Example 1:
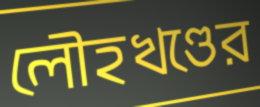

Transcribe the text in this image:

লৌহখণ্ডের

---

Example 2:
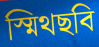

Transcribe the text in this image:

স্মিথছবি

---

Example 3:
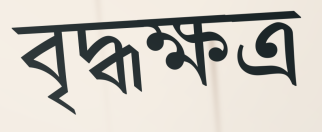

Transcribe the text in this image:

বৃদ্ধক্ষত্র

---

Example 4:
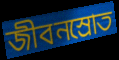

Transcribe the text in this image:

জীবনস্রোত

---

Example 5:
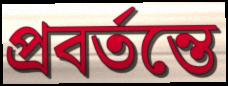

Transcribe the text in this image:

প্রবর্তন্তে